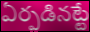
ఏర్పడినట్టే